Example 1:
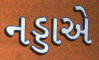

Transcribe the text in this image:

નડ્ડાએ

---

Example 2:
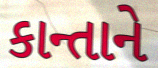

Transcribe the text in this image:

કાન્તાને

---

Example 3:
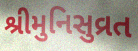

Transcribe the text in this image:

શ્રીમુનિસુવ્રત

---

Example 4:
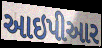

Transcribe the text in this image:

આઇપીઆર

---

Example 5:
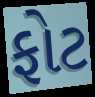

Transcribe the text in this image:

ફોટ